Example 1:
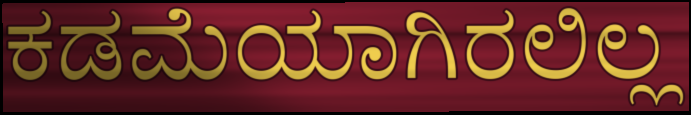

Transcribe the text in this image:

ಕಡಮೆಯಾಗಿರಲಿಲ್ಲ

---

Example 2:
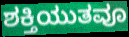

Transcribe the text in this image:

ಶಕ್ತಿಯುತವೂ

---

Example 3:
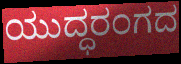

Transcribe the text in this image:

ಯುದ್ಧರಂಗದ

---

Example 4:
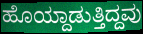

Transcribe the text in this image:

ಹೊಯ್ದಾಡುತ್ತಿದ್ದವು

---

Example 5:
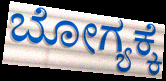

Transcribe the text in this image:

ಬೋಗ್ಯಕ್ಕೆ